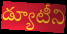
డ్యూటీని